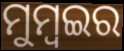
ମୁମ୍ବଇର